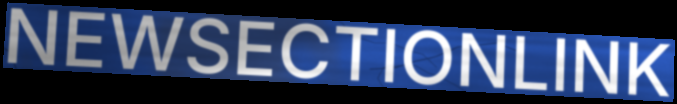
NEWSECTIONLINK